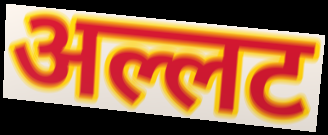
अल्लट